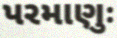
પરમાણુઃ